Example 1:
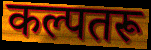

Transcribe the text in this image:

कल्पतरू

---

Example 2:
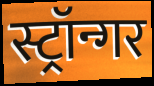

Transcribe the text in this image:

स्ट्रॉन्गर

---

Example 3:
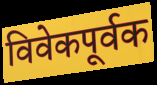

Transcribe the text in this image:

विवेकपूर्वक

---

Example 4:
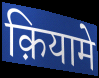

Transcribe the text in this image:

क़ियामे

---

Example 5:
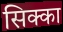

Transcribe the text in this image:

सिक्का